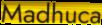
Madhuca